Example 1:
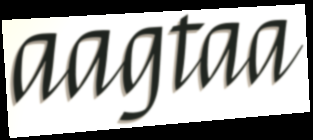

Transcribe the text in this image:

aagtaa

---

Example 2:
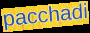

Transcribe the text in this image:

pacchadi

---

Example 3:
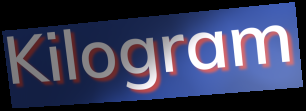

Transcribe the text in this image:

Kilogram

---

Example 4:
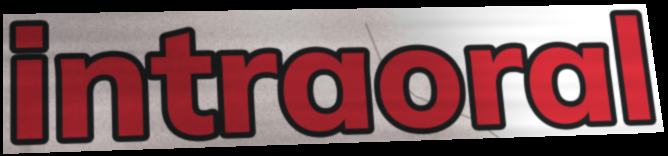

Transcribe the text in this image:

intraoral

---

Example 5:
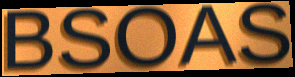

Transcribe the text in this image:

BSOAS